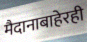
मैदानाबाहेरही